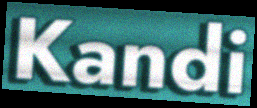
Kandi